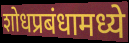
शोधप्रबंधामध्ये